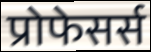
प्रोफेसर्स